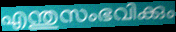
എന്തുസംഭവിക്കും